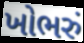
ખોભરું